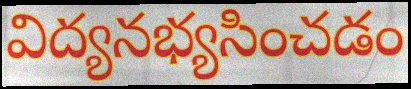
విద్యనభ్యసించడం